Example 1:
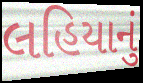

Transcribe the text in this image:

લહિયાનું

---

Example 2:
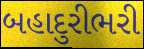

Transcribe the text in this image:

બહાદુરીભરી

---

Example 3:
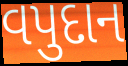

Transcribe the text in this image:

વપુદાન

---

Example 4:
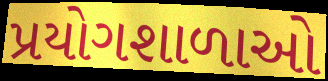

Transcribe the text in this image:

પ્રયોગશાળાઓ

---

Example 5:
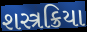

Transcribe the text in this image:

શસ્ત્રક્રિયા